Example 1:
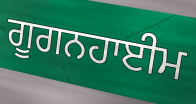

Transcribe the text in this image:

ਗੂਗਨਹਾਈਮ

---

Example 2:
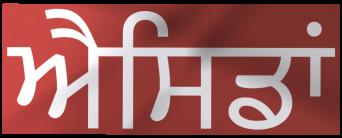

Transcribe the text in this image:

ਐਸਿਡਾਂ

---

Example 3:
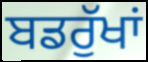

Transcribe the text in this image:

ਬਡਰੁੱਖਾਂ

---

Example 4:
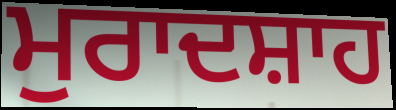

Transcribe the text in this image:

ਮੁਰਾਦਸ਼ਾਹ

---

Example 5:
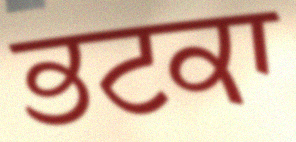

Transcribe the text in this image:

ਭਟਕਾ